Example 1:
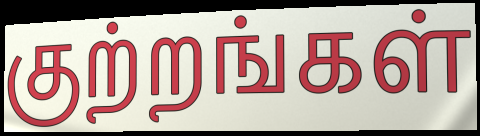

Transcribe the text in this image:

குற்றங்கள்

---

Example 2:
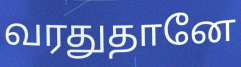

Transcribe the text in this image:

வரதுதானே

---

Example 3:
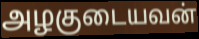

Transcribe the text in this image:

அழகுடையவன்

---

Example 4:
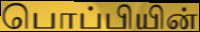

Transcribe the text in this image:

பொப்பியின்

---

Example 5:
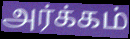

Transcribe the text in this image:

அர்க்கம்